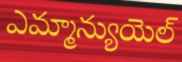
ఎమ్మాన్యుయెల్